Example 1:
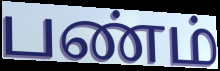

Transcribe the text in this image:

பண்ம்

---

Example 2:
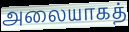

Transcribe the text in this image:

அலையாகத்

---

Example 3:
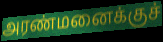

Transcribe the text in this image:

அரண்மனைக்குச்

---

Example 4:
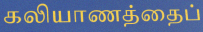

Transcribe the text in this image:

கலியாணத்தைப்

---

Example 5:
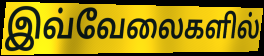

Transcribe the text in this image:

இவ்வேலைகளில்